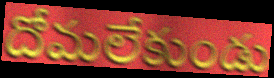
దోమలేకుండు